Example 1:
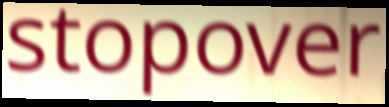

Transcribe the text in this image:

stopover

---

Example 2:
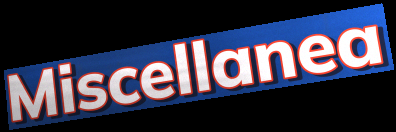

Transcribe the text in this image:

Miscellanea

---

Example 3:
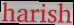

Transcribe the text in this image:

harish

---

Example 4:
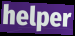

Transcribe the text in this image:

helper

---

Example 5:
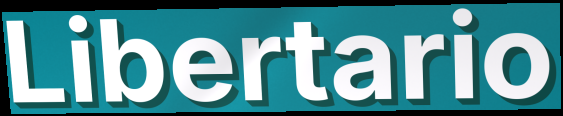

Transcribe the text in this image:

Libertario